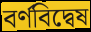
বর্ণবিদ্বেষ